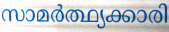
സാമർത്ഥ്യക്കാരി